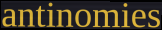
antinomies